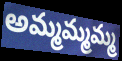
అమ్మమ్మమ్మ